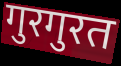
गुरगुरत